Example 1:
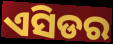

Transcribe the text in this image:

ଏସିଡର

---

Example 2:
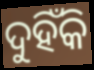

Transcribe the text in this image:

ଦୁହିଁକି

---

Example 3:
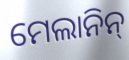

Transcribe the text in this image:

ମେଲାନିନ୍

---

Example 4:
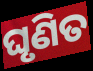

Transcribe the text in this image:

ଘୃଣିତ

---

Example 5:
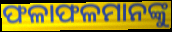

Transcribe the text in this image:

ଫଳାଫଳମାନଙ୍କୁ